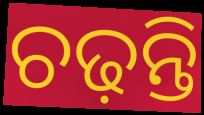
ଚଢ଼ନ୍ତି